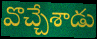
వొచ్చేశాడు